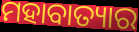
ମହାବାତ୍ୟାର